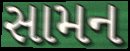
સામન